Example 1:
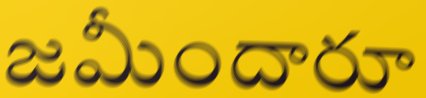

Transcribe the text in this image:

జమీందారూ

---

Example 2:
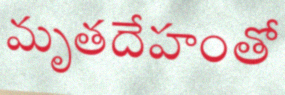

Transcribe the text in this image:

మృతదేహంతో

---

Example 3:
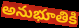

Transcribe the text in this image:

అనుభూతికి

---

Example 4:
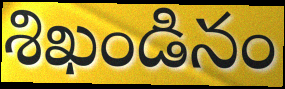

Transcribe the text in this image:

శిఖండినం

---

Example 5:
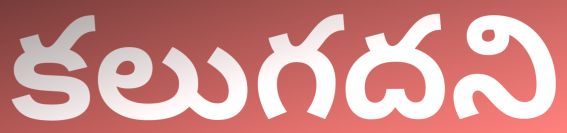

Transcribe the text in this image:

కలుగదని